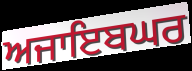
ਅਜਾਇਬਘਰ